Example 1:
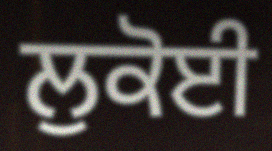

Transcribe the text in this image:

ਲੁਕੋਈ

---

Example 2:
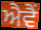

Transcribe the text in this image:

ਐਵੈਂ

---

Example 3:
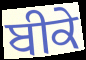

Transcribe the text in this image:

ਬੀਕੇ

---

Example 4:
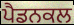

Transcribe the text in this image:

ਪੈਡਨਕਲ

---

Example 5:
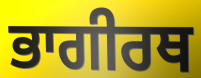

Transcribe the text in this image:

ਭਾਗੀਰਥ